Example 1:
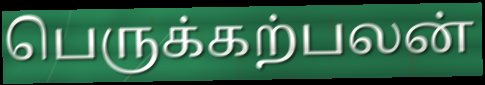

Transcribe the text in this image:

பெருக்கற்பலன்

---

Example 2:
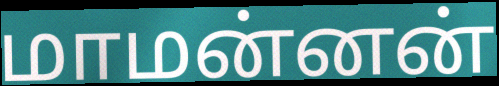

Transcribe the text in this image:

மாமன்னன்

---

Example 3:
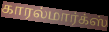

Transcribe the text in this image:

காரல்மார்க்ஸ்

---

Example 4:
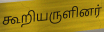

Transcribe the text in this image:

கூறியருளினர்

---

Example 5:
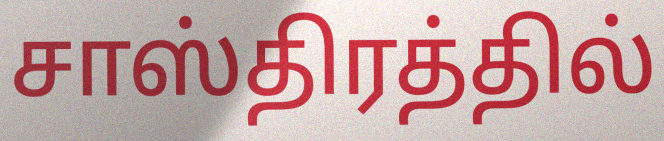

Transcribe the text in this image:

சாஸ்திரத்தில்